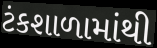
ટંકશાળામાંથી